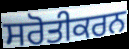
ਸਰੋਤੀਕਰਨ